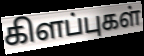
கிளப்புகள்